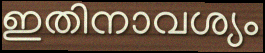
ഇതിനാവശ്യം